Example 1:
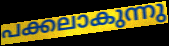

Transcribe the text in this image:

പക്കലാകുന്നു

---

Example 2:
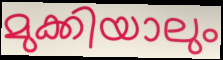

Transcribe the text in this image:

മുക്കിയാലും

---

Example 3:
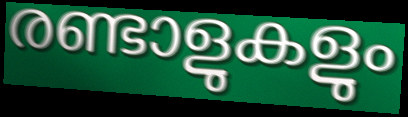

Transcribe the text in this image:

രണ്ടാളുകളും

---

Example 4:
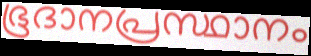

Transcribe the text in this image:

ഭൂദാനപ്രസ്ഥാനം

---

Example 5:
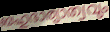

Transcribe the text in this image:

ബഹുഭാര്യാത്വവും